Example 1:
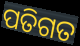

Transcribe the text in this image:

ପତିଗତ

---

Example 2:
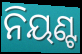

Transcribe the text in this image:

ନିୟଣ୍ଟ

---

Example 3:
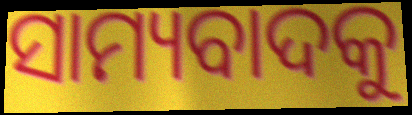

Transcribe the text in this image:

ସାମ୍ୟବାଦକୁ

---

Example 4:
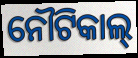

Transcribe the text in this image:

ନୌଟିକାଲ୍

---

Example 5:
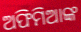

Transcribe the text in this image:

ଅଫିମିଆଙ୍କ